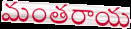
మంతరాయ